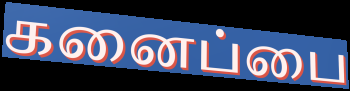
கனைப்பை